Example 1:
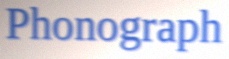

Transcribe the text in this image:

Phonograph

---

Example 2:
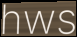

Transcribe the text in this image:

hws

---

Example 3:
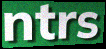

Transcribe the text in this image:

ntrs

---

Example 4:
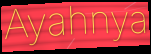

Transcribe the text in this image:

Ayahnya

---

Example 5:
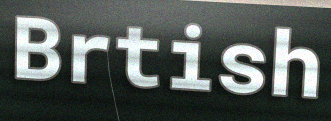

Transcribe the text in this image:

Brtish